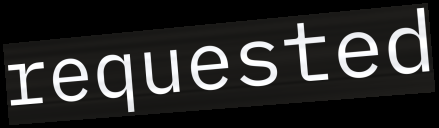
requested